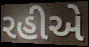
રહીએ